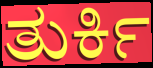
ತುರ್ಕಿ